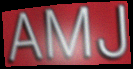
AMJ